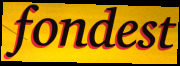
fondest